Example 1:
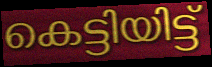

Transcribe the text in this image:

കെട്ടിയിട്ട്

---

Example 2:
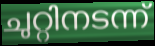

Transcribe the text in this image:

ചുറ്റിനടന്ന്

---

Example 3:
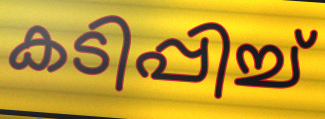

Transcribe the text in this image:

കടിപ്പിച്ച്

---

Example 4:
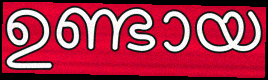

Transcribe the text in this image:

ഉണ്ടായ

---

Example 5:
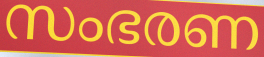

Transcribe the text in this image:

സംഭരണ